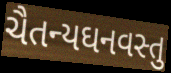
ચૈતન્યઘનવસ્તુ